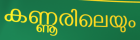
കണ്ണൂരിലെയും